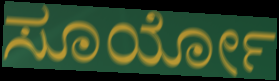
ಸೂರ್ಯೋ